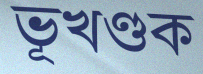
ভূখণ্ডক